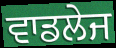
ਵਾਡਲੇਜ